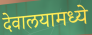
देवालयामध्ये